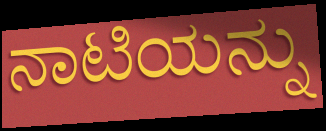
ನಾಟಿಯನ್ನು